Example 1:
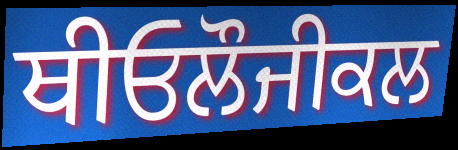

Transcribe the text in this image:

ਥੀਓਲੌਜੀਕਲ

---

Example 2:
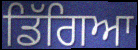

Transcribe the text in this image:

ਡਿੱਗਿਆ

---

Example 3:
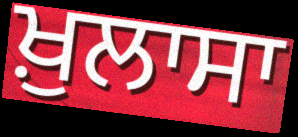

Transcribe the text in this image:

ਖ਼ੁਲਾਸਾ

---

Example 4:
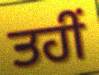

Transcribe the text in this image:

ਤਹੀਂ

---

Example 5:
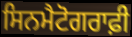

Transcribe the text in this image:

ਸਿਨਮੈਟੋਗਰਾਫ਼ੀ